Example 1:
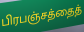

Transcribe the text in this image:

பிரபஞ்சத்தைத்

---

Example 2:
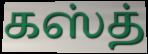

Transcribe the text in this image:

கஸ்த்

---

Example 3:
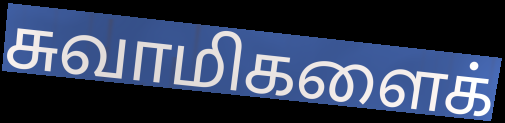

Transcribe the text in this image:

சுவாமிகளைக்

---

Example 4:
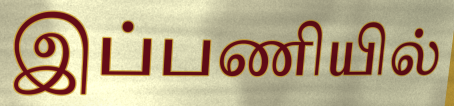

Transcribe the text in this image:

இப்பணியில்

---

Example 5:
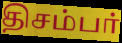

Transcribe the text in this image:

திசம்பர்